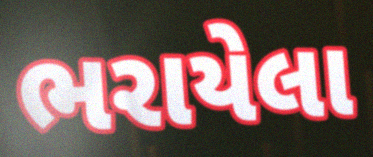
ભરાયેલા